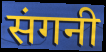
संगनी